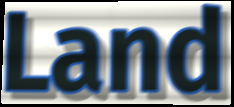
Land